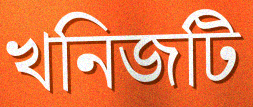
খনিজটি